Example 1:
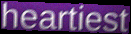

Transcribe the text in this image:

heartiest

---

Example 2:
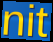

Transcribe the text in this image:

nit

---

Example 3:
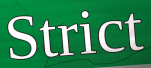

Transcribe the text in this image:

Strict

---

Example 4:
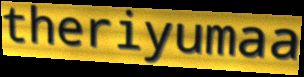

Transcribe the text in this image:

theriyumaa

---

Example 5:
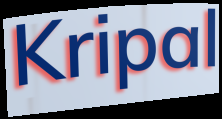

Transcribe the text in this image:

Kripal